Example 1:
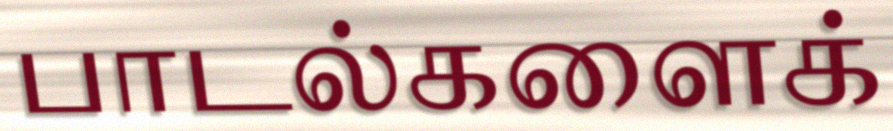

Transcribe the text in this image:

பாடல்களைக்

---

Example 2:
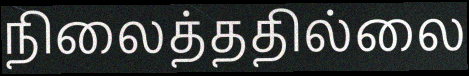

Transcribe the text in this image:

நிலைத்ததில்லை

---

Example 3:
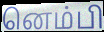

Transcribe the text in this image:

னெம்பி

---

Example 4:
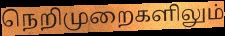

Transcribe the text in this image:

நெறிமுறைகளிலும்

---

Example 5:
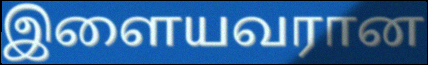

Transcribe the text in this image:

இளையவரான